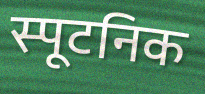
स्पूटनिक